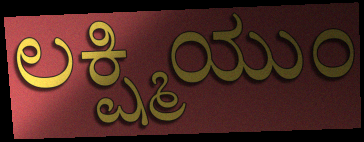
ಲಕ್ಷ್ಮಿಯುಂ